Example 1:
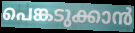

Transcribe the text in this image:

പെങ്കടുക്കാൻ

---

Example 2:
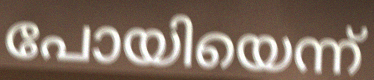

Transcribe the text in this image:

പോയിയെന്ന്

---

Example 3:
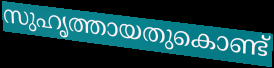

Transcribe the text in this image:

സുഹൃത്തായതുകൊണ്ട്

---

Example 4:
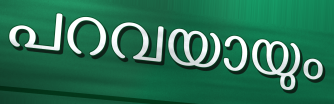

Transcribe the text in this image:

പറവയായും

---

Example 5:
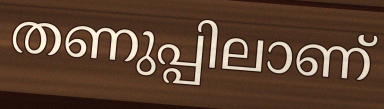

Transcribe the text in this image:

തണുപ്പിലാണ്